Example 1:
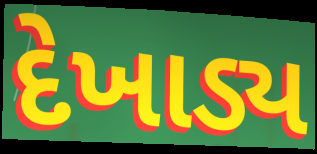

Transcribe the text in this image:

દેખાડ્ય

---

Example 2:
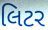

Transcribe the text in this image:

લિટર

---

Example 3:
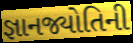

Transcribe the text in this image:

જ્ઞાનજ્યોતિની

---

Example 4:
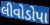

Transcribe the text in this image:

લીવોડોપા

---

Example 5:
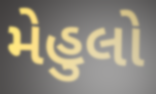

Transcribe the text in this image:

મેહુલો